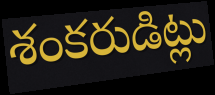
శంకరుడిట్లు